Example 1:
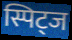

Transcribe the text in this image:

स्पिट्ज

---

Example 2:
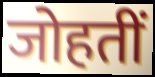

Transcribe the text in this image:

जोहतीं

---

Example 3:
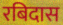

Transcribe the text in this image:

रबिदास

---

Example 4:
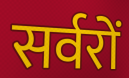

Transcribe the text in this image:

सर्वरों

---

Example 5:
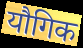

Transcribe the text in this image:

यौगिक